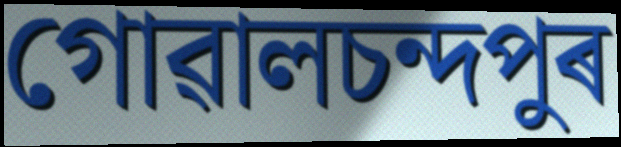
গোৱালচন্দপুৰ